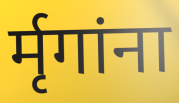
र्मृगांना